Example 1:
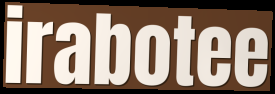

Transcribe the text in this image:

irabotee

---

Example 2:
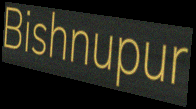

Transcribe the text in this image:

Bishnupur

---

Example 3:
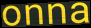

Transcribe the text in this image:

onna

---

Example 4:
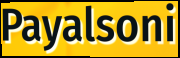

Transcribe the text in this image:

Payalsoni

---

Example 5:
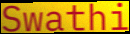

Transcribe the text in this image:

Swathi